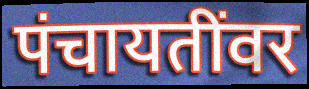
पंचायतींवर